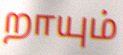
றாயும்